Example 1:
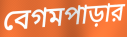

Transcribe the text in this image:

বেগমপাড়ার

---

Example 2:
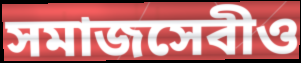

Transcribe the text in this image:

সমাজসেবীও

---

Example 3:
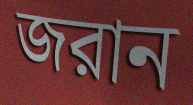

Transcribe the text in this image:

জরান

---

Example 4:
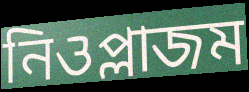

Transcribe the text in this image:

নিওপ্লাজম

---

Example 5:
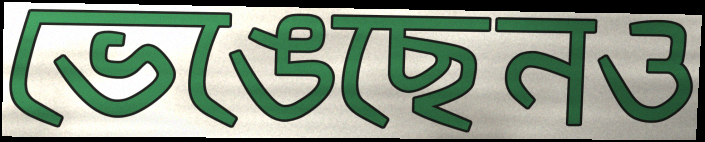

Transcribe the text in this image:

ভেঙেছেনও